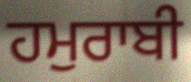
ਹਮੁਰਾਬੀ